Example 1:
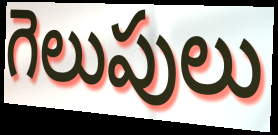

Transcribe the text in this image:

గెలుపులు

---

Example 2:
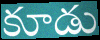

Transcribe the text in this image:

కూడు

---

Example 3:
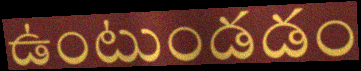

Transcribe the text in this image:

ఉంటుండడం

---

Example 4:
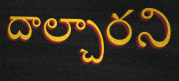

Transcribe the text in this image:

దాల్చారని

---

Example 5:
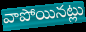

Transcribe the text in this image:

వాపోయినట్లు